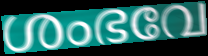
ശംഭവേ